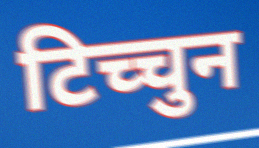
टिच्चुन